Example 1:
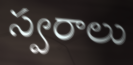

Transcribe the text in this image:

స్వరాలు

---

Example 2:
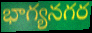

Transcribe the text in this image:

భాగ్యనగర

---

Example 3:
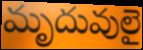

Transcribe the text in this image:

మృదువులై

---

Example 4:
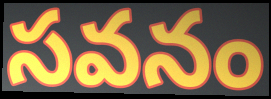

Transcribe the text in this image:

సవనం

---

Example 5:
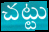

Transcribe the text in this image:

చట్టు